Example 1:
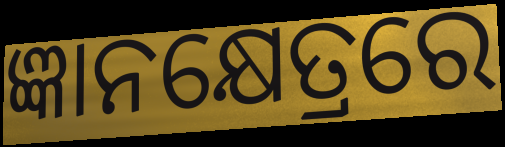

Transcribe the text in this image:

ଜ୍ଞାନକ୍ଷେତ୍ରରେ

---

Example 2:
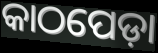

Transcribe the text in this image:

କାଠପେଡ଼ା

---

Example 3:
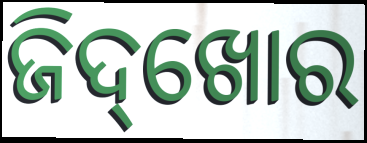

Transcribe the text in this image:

ଜିଦ୍‌ଖୋର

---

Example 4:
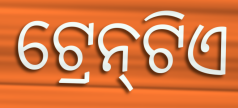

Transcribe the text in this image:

ଟ୍ରେନ୍‌ଟିଏ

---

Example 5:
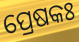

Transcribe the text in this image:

ପ୍ରେଷକଃ